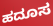
ಹದೂಸ